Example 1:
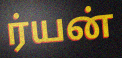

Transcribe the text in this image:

ர்யன்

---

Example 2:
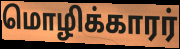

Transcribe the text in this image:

மொழிக்காரர்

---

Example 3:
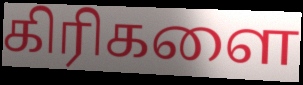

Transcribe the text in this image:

கிரிகளை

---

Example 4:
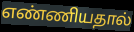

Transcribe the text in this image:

எண்ணியதால்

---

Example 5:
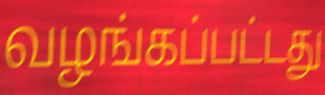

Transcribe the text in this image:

வழங்கப்பட்டது